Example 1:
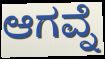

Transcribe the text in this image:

ಆಗವ್ನೆ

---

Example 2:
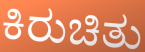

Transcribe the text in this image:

ಕಿರುಚಿತು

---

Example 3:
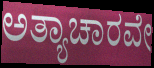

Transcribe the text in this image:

ಅತ್ಯಾಚಾರವೇ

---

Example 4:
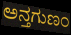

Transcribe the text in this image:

ಅನ್ತಗುಣಂ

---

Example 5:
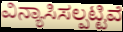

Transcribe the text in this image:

ವಿನ್ಯಾಸಿಸಲ್ಪಟ್ಟಿವೆ